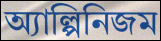
অ্যাল্পিনিজম